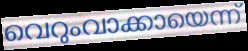
വെറുംവാക്കായെന്ന്